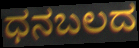
ಧನಬಲದ